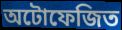
অটোফেজিত